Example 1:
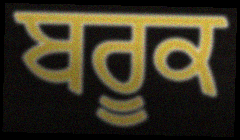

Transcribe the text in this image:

ਬਰੂਕ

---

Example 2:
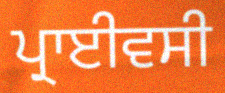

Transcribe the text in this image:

ਪ੍ਰਾਈਵਸੀ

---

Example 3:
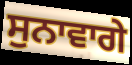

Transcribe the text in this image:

ਸੁਨਾਵਾਗੇ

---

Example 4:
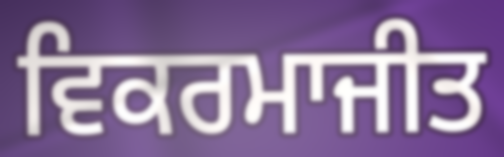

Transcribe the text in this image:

ਵਿਕਰਮਾਜੀਤ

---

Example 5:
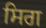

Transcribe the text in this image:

ਸਿਗ